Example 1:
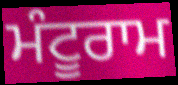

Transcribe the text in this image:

ਮੰਟੂਰਾਮ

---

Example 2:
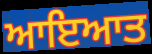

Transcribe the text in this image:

ਆਇਆਤ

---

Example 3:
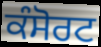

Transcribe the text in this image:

ਕੰਸੋਰਟ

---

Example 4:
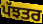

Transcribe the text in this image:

ਪੱਝਤਰ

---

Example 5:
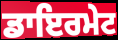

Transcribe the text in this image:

ਡਾਇਰਮੇਟ